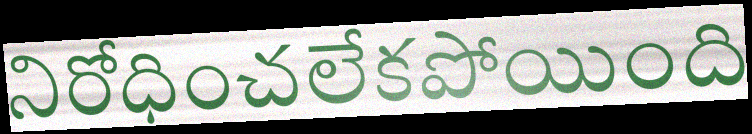
నిరోధించలేకపోయింది